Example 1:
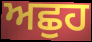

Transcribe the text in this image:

ਅਛੁਹ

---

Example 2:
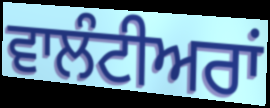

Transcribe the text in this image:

ਵਾਲੰਟੀਅਰਾਂ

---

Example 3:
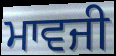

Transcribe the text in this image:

ਮਾਵਜੀ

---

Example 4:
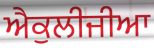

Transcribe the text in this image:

ਐਕੁਲੀਜੀਆ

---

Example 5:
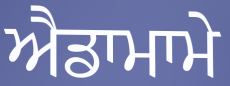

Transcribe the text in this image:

ਐਡਾਮਾਮੇ